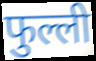
फुल्ली